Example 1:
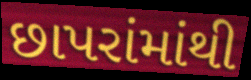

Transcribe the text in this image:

છાપરાંમાંથી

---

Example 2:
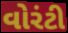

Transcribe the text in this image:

વોરંટી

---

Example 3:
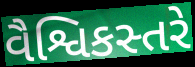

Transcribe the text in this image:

વૈશ્વિકસ્તરે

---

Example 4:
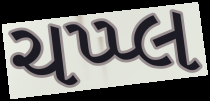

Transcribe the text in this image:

ચપ્પ્લ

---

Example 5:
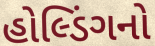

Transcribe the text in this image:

હોલ્ડિંગનો